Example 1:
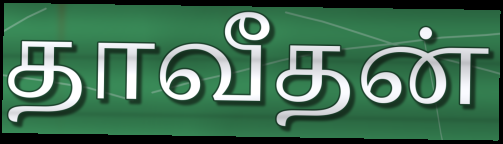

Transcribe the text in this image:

தாவீதன்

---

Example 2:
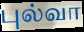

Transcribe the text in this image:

புல்வா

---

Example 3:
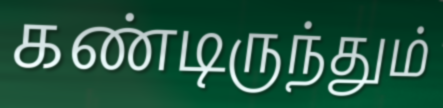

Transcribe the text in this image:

கண்டிருந்தும்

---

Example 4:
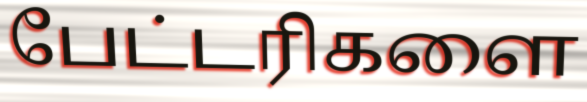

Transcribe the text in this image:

பேட்டரிகளை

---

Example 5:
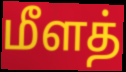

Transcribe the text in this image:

மீளத்